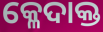
କ୍ଳେଦାକ୍ତ